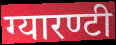
ग्यारण्टी